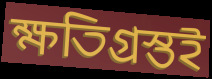
ক্ষতিগ্রস্তই